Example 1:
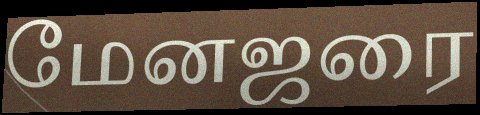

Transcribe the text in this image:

மேனஜரை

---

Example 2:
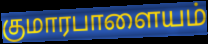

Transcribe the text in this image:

குமாரபாளையம்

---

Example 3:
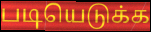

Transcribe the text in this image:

படியெடுக்க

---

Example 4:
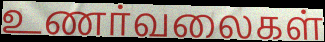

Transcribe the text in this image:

உணர்வலைகள்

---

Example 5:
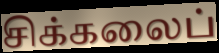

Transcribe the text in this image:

சிக்கலைப்